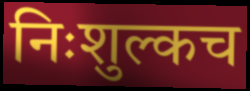
निःशुल्कच